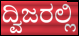
ದ್ವಿಜರಲ್ಲಿ